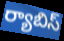
ర్యాబిస్